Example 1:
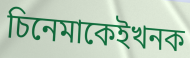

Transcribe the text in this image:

চিনেমাকেইখনক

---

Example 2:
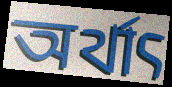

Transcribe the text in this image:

অৰ্থাৎ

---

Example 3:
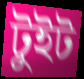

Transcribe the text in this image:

টুইট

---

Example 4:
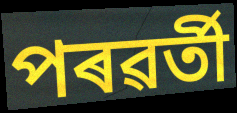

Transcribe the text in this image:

পৰৱৰ্তী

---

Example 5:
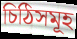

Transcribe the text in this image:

চিঠিসমূহ